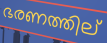
ഭരണത്തില്